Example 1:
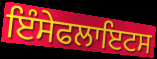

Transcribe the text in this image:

ਇੰਸੇਫਲਾਇਟਸ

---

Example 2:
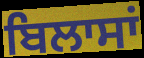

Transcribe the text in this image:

ਬਿਲਾਸਾਂ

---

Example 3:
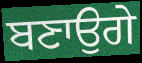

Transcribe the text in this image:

ਬਣਾਉਗੇ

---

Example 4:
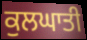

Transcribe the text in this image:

ਕੁਲਘਾਤੀ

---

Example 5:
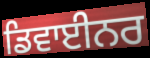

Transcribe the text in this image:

ਡਿਵਾਈਨਰ